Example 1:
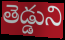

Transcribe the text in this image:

తెడ్డుని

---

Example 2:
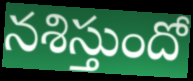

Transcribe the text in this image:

నశిస్తుందో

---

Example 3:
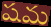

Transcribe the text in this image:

షమ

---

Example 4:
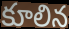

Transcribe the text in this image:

కూలిన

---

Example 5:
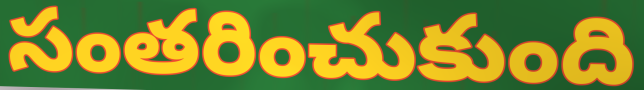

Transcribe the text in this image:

సంతరించుకుంది